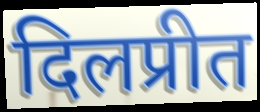
दिलप्रीत